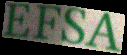
EFSA